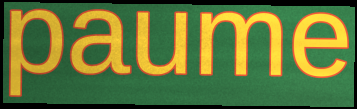
paume